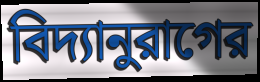
বিদ্যানুরাগের